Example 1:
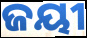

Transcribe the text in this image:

ଜୟୀ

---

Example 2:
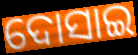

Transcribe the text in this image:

ଦୋସାଇ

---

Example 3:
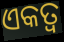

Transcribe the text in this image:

ଏକତ୍ୱ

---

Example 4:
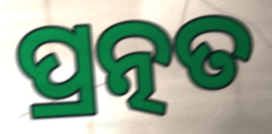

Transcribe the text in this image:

ପ୍ରତ୍ନତ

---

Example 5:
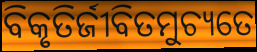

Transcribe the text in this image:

ବିକୃତିର୍ଜୀବିତମୁଚ୍ୟତେ